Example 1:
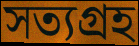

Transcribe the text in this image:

সত্যগ্ৰহ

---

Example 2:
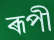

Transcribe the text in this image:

ৰূপী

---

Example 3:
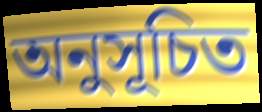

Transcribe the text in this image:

অনুসূচিত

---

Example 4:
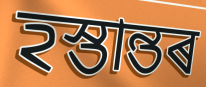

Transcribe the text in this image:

হস্তান্তৰ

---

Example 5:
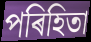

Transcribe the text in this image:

পৰিহিতা